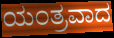
ಯಂತ್ರವಾದ